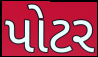
પોટર